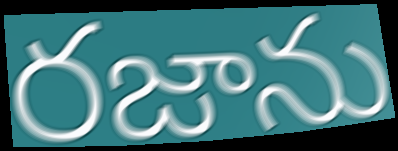
రజాను